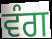
ਵੰਗ